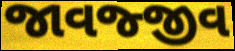
જાવજ્જીવ